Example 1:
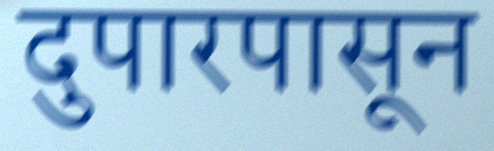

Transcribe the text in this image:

दुपारपासून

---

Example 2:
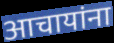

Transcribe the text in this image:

आचायांना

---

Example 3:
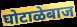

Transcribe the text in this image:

घोटाळेबाज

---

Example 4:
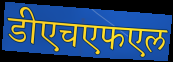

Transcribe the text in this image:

डीएचएफएल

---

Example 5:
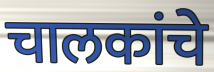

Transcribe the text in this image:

चालकांचे